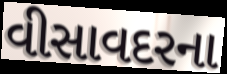
વીસાવદરના